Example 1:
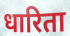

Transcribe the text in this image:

धारिता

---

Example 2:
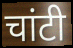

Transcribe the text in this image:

चांटी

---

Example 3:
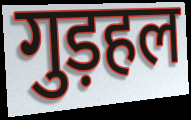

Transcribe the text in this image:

गुड़हल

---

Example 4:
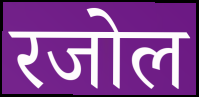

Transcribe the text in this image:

रजोल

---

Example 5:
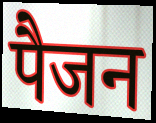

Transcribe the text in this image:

पैजन